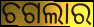
ଚଗଲାର